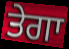
ਤੇਗਾ